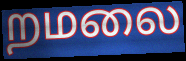
றமலை